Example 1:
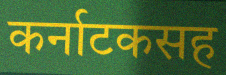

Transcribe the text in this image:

कर्नाटकसह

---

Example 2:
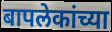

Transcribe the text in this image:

बापलेकांच्या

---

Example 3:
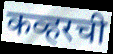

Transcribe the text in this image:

कव्हरची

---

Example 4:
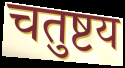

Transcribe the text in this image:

चतुष्टय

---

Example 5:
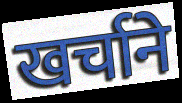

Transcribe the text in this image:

खर्चाने